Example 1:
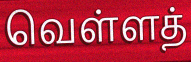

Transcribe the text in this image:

வெள்ளத்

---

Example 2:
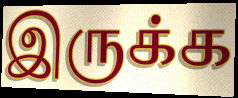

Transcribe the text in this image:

இருக்க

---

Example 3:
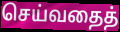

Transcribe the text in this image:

செய்வதைத்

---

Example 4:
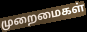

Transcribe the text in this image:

முறைமைகள்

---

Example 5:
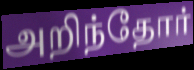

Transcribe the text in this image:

அறிந்தோர்